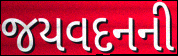
જયવદનની